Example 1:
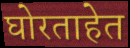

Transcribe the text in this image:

घोरताहेत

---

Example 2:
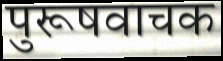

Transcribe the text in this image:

पुरूषवाचक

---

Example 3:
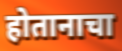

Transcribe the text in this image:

होतानाचा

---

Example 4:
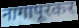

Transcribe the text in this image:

नागापूरकर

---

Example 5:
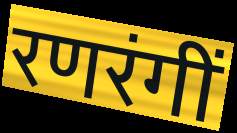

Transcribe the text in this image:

रणरंगीं